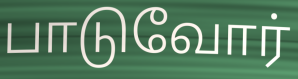
பாடுவோர்